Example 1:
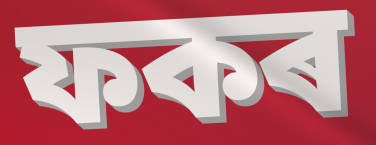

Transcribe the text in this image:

ফকৰ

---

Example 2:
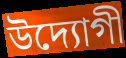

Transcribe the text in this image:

উদ্যোগী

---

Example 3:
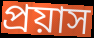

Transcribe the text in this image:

প্ৰয়াস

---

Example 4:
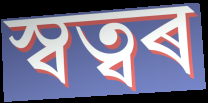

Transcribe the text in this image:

স্বত্বৰ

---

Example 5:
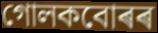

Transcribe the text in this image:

গোলকবোৰৰ